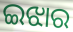
ଇଝାର